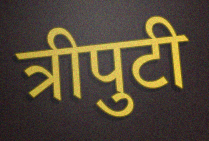
त्रीपुटी